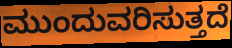
ಮುಂದುವರಿಸುತ್ತದೆ